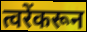
त्वरेंकरून